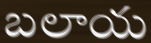
బలాయ